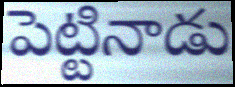
పెట్టినాడు